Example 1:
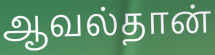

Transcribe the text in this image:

ஆவல்தான்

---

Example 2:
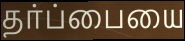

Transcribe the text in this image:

தர்ப்பையை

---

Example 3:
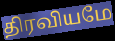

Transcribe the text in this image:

திரவியமே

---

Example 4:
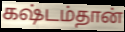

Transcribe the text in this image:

கஷ்டம்தான்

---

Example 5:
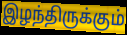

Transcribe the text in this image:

இழந்திருக்கும்